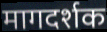
मागदर्शक